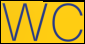
WC